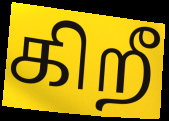
கிறீ